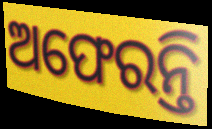
ଅଫେରନ୍ତି